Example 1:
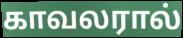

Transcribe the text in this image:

காவலரால்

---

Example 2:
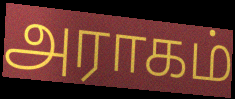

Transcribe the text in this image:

அராகம்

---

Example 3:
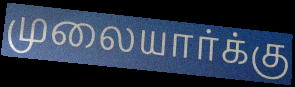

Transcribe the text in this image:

முலையார்க்கு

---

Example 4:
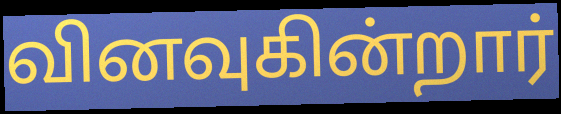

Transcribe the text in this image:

வினவுகின்றார்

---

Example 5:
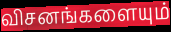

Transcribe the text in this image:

விசனங்களையும்